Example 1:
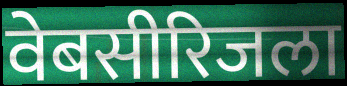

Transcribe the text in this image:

वेबसीरिजला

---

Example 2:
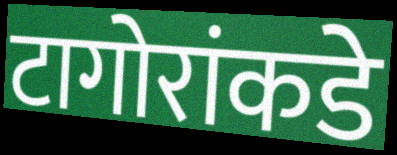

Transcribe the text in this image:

टागोरांकडे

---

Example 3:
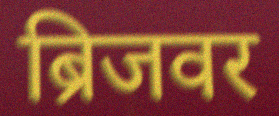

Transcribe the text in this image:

ब्रिजवर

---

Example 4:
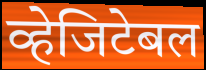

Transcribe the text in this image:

व्हेजिटेबल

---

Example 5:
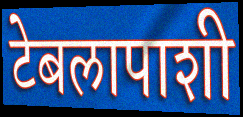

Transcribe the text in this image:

टेबलापाशी